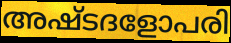
അഷ്ടദളോപരി